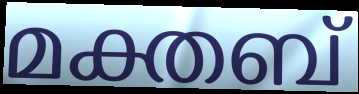
മക്തബ്